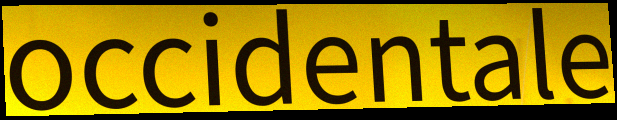
occidentale